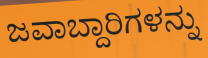
ಜವಾಬ್ದಾರಿಗಳನ್ನು